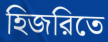
হিজরিতে